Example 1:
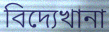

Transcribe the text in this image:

বিদ্যেখানা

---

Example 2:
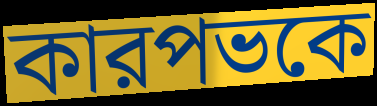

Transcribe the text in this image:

কারপভকে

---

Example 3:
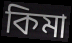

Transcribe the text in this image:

কিমা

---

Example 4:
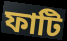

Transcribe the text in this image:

ফাটি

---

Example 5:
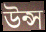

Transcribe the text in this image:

উন্স